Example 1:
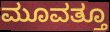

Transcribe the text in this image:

ಮೂವತ್ತೂ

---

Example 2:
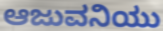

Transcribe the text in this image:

ಆಜುವನಿಯು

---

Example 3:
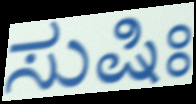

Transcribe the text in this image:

ಸುಷಿಃ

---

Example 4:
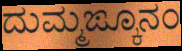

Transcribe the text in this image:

ದುಮ್ಮಙ್ಕೂನಂ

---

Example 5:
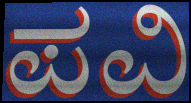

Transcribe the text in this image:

ಪವಿ